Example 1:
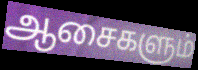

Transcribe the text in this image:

ஆசைகளும்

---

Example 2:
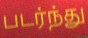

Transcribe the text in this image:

படர்ந்து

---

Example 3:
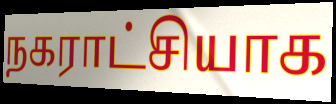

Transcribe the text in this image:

நகராட்சியாக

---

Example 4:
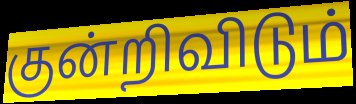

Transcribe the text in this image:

குன்றிவிடும்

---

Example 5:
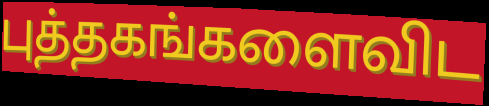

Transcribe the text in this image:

புத்தகங்களைவிட